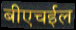
बीएचईल